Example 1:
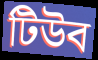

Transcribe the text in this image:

টিউব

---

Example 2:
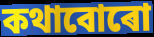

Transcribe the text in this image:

কথাবোৰো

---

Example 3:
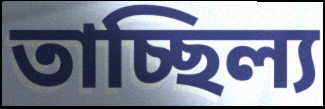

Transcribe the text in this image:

তাচ্ছিল্য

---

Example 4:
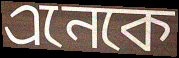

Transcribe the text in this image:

এনেকে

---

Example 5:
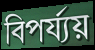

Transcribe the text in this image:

বিপৰ্য্যয়